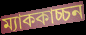
ম্যাককাচ্চন